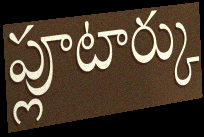
ప్లూటార్కు